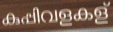
കുപ്പിവളകള്